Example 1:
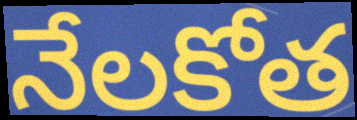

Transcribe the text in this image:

నేలకోత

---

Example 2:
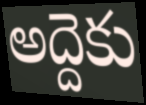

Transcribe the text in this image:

అద్దెకు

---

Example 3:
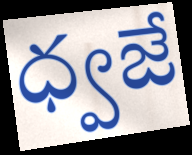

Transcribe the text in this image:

ధ్వజే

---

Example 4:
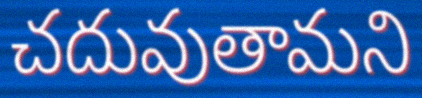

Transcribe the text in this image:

చదువుతామని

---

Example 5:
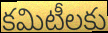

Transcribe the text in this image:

కమిటీలకు